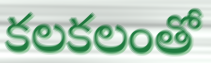
కలకలంతో